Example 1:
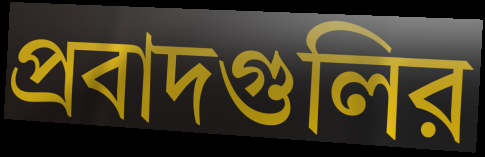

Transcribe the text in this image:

প্রবাদগুলির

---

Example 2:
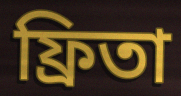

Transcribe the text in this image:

ফ্রিতা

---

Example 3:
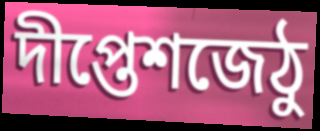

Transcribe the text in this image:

দীপ্তেশজেঠু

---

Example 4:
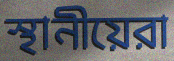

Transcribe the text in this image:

স্থানীয়েরা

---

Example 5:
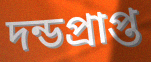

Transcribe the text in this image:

দন্ডপ্রাপ্ত